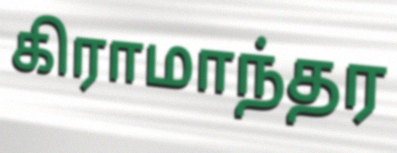
கிராமாந்தர